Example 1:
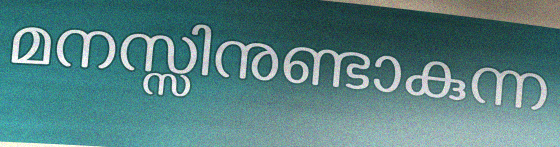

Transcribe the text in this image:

മനസ്സിനുണ്ടാകുന്ന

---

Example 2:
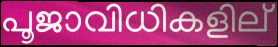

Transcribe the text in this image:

പൂജാവിധികളില്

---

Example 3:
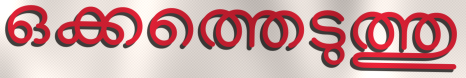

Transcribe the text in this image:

ഒക്കത്തെടുത്തു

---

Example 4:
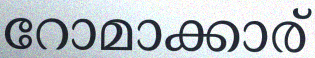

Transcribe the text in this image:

റോമാക്കാര്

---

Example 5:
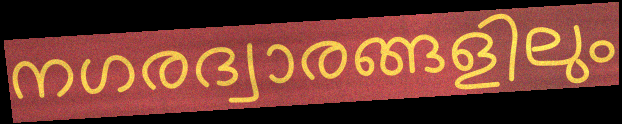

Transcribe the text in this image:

നഗരദ്വാരങ്ങളിലും